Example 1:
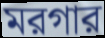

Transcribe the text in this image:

মরগার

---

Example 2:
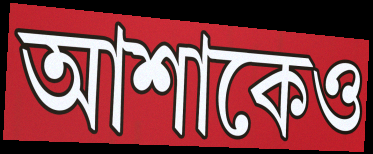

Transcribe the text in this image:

আশাকেও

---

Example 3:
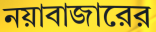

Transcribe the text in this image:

নয়াবাজারের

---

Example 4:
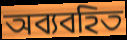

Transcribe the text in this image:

অব্যবহিত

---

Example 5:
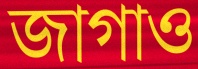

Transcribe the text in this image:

জাগাও